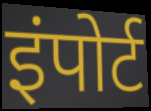
इंपोर्ट